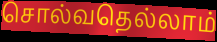
சொல்வதெல்லாம்